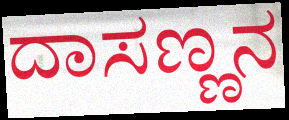
ದಾಸಣ್ಣನ